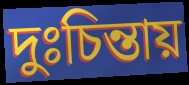
দুঃচিন্তায়